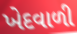
ખેદવાળી